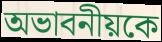
অভাবনীয়কে